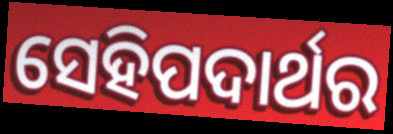
ସେହିପଦାର୍ଥର